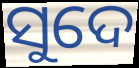
ସୁଦେ